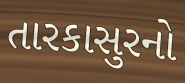
તારકાસુરનો